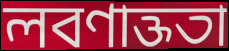
লবণাক্ততা